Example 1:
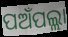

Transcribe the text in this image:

ପଅଁପଲ୍ଲା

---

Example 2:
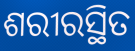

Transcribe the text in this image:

ଶରୀରସ୍ଥିତ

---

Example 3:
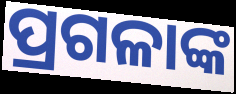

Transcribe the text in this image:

ପ୍ରଗଳାଙ୍କ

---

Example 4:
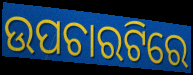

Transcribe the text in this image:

ଉପଚାରଟିରେ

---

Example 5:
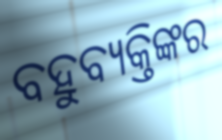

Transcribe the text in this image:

ବହୁବ୍ୟକ୍ତିଙ୍କର